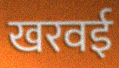
खरवई